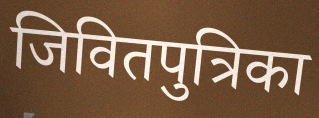
जिवितपुत्रिका